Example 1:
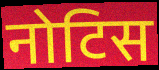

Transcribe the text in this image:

नोटिस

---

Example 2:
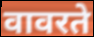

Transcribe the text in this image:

वावरते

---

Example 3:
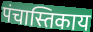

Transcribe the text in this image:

पंचास्तिकाय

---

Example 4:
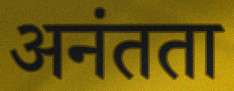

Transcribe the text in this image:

अनंतता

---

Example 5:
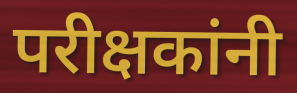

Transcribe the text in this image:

परीक्षकांनी